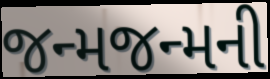
જન્મજન્મની